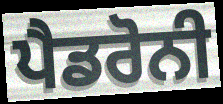
ਪੈਡਰੋਨੀ